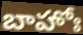
బాహోః